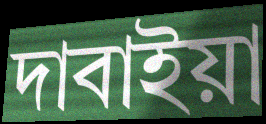
দাবাইয়া